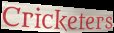
Cricketers